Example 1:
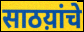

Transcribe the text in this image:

साठय़ांचे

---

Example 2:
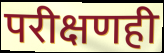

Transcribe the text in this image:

परीक्षणही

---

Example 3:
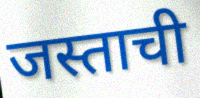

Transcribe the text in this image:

जस्ताची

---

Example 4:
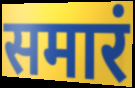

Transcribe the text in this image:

समारं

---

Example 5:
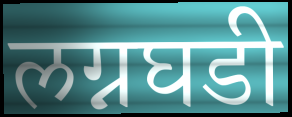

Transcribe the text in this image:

लग्नघडी